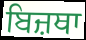
ਬਿਜ਼ਥਾ